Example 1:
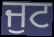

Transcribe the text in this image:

ਜੁਟ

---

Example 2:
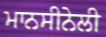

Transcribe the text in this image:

ਮਾਨਸੀਨੇਲੀ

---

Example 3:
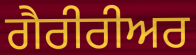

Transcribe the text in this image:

ਗੈਰੀਰੀਅਰ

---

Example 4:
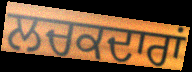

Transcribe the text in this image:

ਲਚਕਦਾਰਾਂ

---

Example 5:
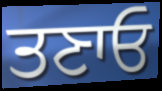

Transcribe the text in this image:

ਤਣਾਓ